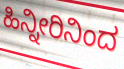
ಹಿನ್ನೀರಿನಿಂದ